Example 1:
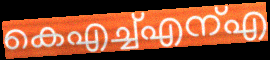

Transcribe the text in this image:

കെഎച്ച്എന്എ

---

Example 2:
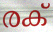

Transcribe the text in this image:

രക്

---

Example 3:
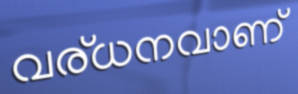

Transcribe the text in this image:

വര്ധനവാണ്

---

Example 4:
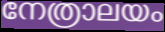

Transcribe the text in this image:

നേത്രാലയം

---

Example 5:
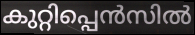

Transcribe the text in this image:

കുറ്റിപ്പെൻസിൽ